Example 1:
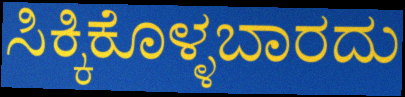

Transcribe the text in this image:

ಸಿಕ್ಕಿಕೊಳ್ಳಬಾರದು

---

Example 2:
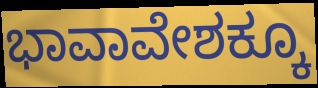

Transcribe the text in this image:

ಭಾವಾವೇಶಕ್ಕೂ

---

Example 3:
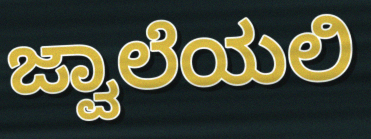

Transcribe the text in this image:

ಜ್ವಾಲೆಯಲಿ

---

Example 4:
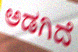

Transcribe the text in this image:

ಅಡಗಿದೆ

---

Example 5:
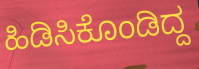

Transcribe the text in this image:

ಹಿಡಿಸಿಕೊಂಡಿದ್ದ